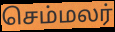
செம்மலர்